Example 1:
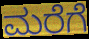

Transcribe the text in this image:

ಮರೆಗೆ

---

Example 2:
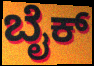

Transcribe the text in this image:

ಬೈಕ್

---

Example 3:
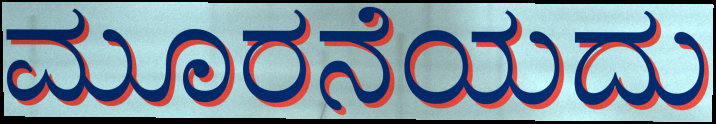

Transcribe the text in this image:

ಮೂರನೆಯದು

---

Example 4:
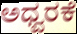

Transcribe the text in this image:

ಅಧ್ವರಕೆ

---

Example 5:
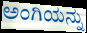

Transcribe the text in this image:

ಅಂಗಿಯನ್ನು